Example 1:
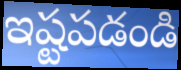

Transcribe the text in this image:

ఇష్టపడండి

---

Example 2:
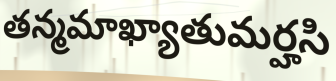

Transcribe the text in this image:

తన్మమాఖ్యాతుమర్హసి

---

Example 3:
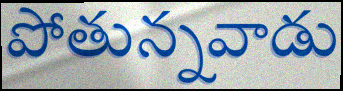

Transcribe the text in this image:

పోతున్నవాడు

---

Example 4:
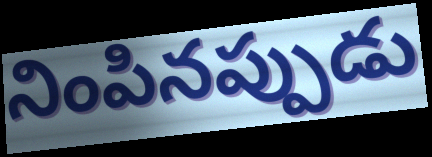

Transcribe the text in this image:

నింపినప్పుడు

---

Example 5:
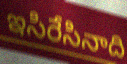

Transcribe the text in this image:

ఇసిరేసినాది